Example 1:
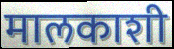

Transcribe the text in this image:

मालकाशी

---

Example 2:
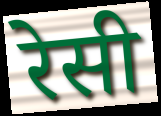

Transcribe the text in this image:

रेसी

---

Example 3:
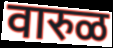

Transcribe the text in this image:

वारुळ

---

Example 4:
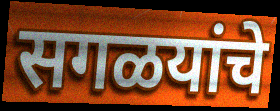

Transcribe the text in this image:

सगळयांचे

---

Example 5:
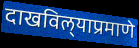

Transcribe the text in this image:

दाखविल्याप्रमाणे